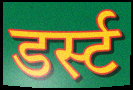
डर्स्ट